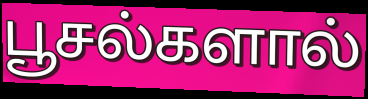
பூசல்களால்